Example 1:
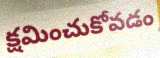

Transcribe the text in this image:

క్షమించుకోవడం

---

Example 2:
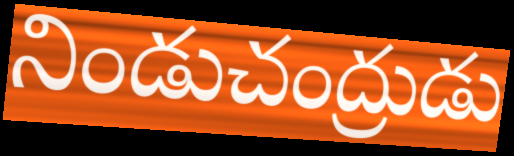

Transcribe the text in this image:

నిండుచంద్రుడు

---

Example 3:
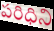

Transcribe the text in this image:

పరిధిని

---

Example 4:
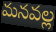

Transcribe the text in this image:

మనవల్ల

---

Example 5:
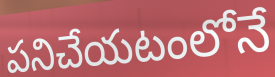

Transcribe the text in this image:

పనిచేయటంలోనే